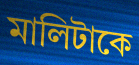
মালিটাকে